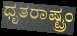
ಧೃತರಾಷ್ಟ್ರಂ